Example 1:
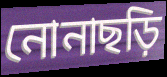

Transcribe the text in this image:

নোনাছড়ি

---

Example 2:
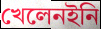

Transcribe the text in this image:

খেলেনইনি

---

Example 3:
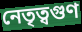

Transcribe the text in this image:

নেতৃত্বগুণ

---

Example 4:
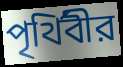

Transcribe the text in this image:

পৃর্থিবীর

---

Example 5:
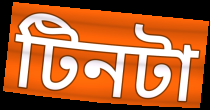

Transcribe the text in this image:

টিনটা